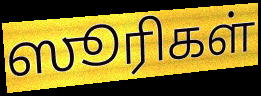
ஸூரிகள்